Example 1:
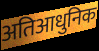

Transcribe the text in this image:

अतिआधुनिक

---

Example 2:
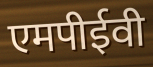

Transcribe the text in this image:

एमपीईवी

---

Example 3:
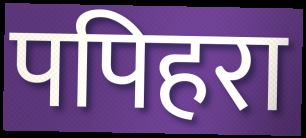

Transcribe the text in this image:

पपिहरा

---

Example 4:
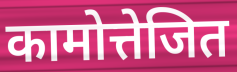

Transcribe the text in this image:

कामोत्तेजित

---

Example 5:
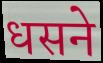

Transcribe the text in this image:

धसने